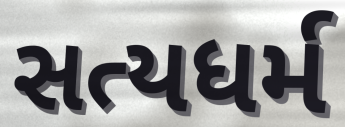
સત્યધર્મ